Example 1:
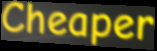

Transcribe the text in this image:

Cheaper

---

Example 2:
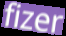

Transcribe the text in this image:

fizer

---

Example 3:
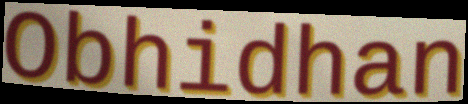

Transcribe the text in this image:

Obhidhan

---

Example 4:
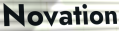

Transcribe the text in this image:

Novation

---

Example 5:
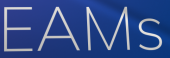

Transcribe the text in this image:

EAMs